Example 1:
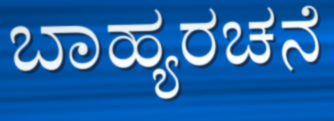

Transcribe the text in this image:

ಬಾಹ್ಯರಚನೆ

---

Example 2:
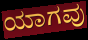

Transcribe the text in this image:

ಯಾಗವು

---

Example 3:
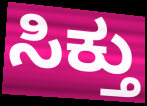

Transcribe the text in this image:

ಸಿಕ್ತು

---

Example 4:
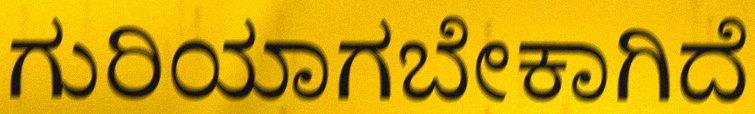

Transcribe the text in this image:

ಗುರಿಯಾಗಬೇಕಾಗಿದೆ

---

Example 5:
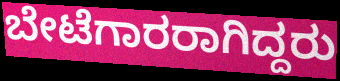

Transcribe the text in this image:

ಬೇಟೆಗಾರರಾಗಿದ್ದರು